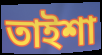
তাইশা